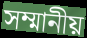
সম্মানীয়